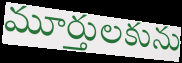
మూర్తులకును